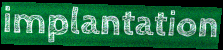
implantation